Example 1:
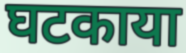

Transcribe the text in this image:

घटकाया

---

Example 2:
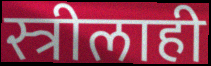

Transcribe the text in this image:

स्त्रीलाही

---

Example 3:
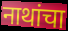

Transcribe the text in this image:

नाथांचा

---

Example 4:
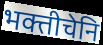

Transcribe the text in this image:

भक्तीचेनि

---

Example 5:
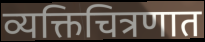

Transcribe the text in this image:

व्यक्तिचित्रणात